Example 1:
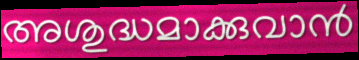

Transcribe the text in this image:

അശുദ്ധമാക്കുവാൻ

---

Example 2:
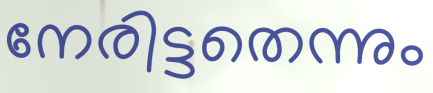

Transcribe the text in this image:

നേരിട്ടതെന്നും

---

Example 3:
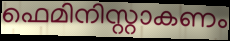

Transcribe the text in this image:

ഫെമിനിസ്റ്റാകണം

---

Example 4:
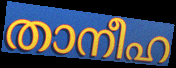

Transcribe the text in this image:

താനീഹ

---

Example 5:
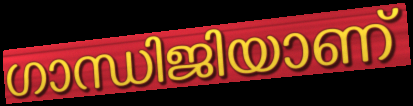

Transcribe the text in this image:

ഗാന്ധിജിയാണ്